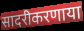
सादरीकरणाया